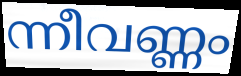
ന്നീവണ്ണം